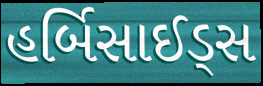
હર્બિસાઈડ્સ